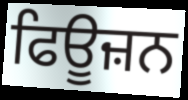
ਫਿਊਜ਼ਨ